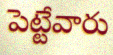
పెట్టేవారు